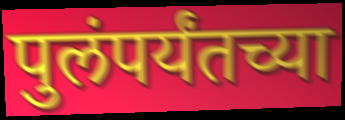
पुलंपर्यंतच्या